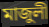
মাজুলী